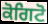
ਕੋਗਿਟੋ